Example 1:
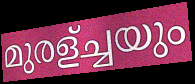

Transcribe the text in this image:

മുരള്ച്ചയും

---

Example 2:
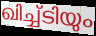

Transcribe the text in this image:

ഖിച്ച്ടിയും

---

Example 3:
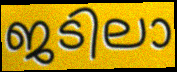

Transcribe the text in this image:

ജടിലാ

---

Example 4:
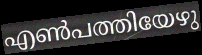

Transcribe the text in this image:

എൺപത്തിയേഴു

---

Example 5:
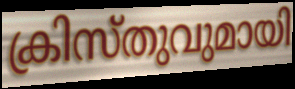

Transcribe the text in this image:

ക്രിസ്തുവുമായി